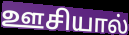
ஊசியால்